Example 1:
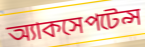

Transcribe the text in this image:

অ্যাকসেপটেন্স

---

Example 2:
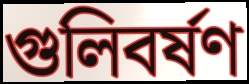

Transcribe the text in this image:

গুলিবৰ্ষণ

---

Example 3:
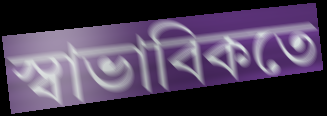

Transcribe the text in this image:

স্বাভাবিকতে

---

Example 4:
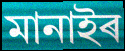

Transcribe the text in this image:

মানাইৰ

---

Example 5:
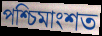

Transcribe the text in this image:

পশ্চিমাংশত